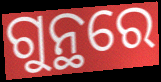
ଗୁନ୍ଥରେ